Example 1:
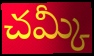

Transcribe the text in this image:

చమ్కీ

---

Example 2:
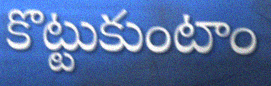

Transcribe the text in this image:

కొట్టుకుంటాం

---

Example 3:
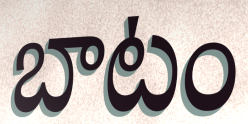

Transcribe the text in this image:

బాటం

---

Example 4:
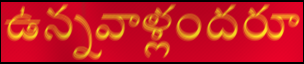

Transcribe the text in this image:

ఉన్నవాళ్లందరూ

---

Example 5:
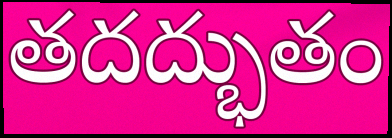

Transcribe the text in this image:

తదద్భుతం